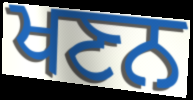
ਖਣਨ